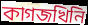
কাগজখিনি